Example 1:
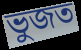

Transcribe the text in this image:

ভুজত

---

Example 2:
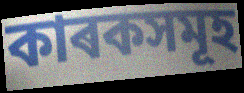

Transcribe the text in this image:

কাৰকসমূহ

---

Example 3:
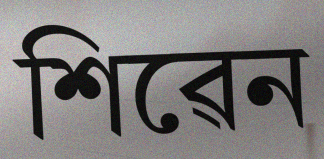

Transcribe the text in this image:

শিৱেন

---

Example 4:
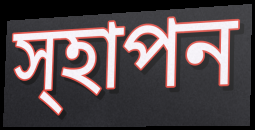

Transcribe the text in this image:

স্হাপন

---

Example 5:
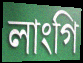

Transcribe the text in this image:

লাংগি